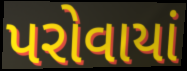
પરોવાયાં